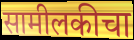
सामीलकीचा